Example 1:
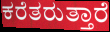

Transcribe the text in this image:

ಕರೆತರುತ್ತಾರೆ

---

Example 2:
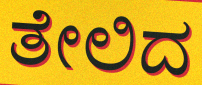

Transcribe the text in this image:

ತೇಲಿದ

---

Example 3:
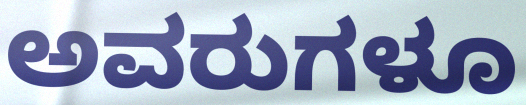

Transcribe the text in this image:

ಅವರುಗಳೂ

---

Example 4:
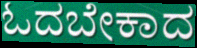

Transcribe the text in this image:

ಓದಬೇಕಾದ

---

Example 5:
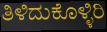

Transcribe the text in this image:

ತಿಳಿದುಕೊಳ್ಳಿರಿ